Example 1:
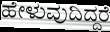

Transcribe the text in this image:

ಹೇಳುವುದಿದ್ದರೆ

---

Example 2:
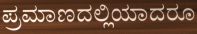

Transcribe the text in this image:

ಪ್ರಮಾಣದಲ್ಲಿಯಾದರೂ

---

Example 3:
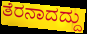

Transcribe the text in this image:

ತೆರನಾದದ್ದು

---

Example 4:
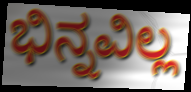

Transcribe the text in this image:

ಭಿನ್ನವಿಲ್ಲ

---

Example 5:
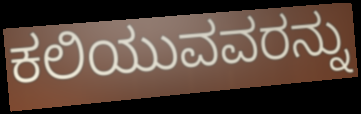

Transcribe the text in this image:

ಕಲಿಯುವವರನ್ನು